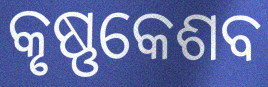
କୃଷ୍ଣକେଶବ